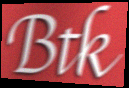
Btk